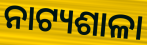
ନାଟ୍ୟଶାଳା